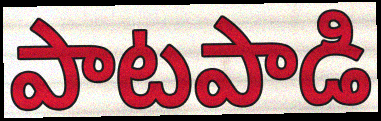
పాటపాడి